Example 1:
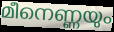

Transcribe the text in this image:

മീനെണ്ണയും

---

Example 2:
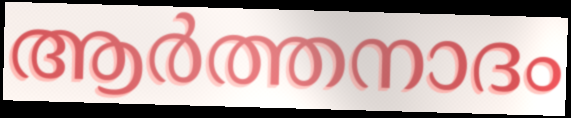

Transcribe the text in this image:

ആർത്തനാദം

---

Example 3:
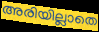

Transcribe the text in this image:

അരിയില്ലാതെ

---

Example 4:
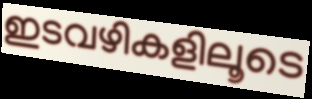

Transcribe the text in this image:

ഇടവഴികളിലൂടെ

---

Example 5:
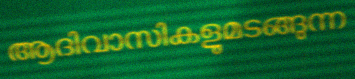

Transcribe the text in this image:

ആദിവാസികളുമടങ്ങുന്ന